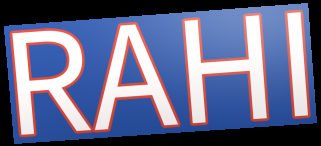
RAHI